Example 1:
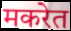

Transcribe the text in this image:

मकरेत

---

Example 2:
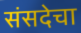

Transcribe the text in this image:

संसदेचा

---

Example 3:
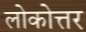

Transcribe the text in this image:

लोकोत्तर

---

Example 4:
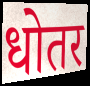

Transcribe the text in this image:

धोतर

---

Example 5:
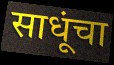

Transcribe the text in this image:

साधूंचा